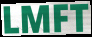
LMFT